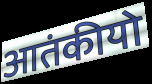
आतंकीयो